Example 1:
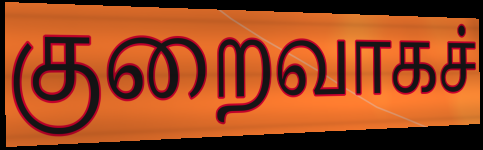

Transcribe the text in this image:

குறைவாகச்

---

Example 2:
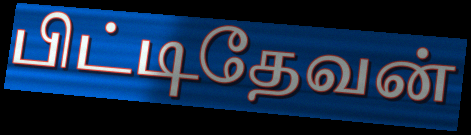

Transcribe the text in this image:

பிட்டிதேவன்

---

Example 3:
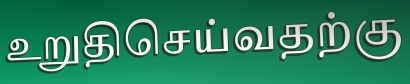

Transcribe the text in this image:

உறுதிசெய்வதற்கு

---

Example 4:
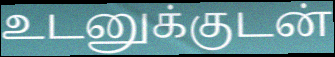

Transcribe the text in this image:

உடனுக்குடன்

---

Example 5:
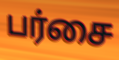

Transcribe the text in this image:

பர்சை